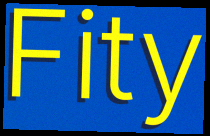
Fity